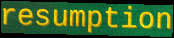
resumption